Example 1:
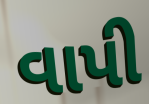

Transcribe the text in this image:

વાપી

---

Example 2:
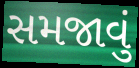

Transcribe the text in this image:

સમજાવું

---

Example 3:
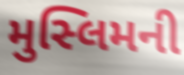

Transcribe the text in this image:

મુસ્લિમની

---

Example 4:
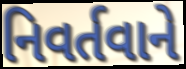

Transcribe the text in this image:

નિવર્તવાને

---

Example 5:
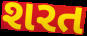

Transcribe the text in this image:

શરત